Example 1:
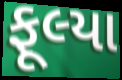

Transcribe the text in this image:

ફૂલ્યા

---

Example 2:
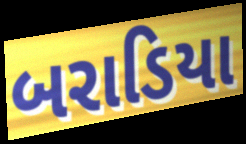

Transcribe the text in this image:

બરાડિયા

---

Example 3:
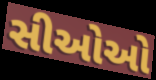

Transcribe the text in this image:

સીઓઓ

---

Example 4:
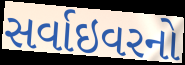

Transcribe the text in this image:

સર્વાઇવરનો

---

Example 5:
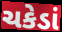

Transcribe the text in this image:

ચકેડાં